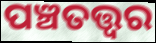
ପଞ୍ଚତତ୍ତ୍ୱର